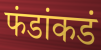
फंडांकडं